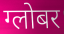
ग्लोबर